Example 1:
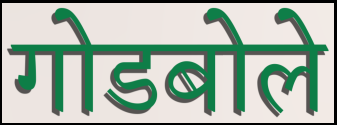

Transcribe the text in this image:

गोडबोले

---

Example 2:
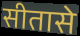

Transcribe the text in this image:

सीतासे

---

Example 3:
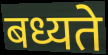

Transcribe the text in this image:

बध्यते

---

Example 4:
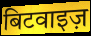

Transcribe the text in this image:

बिटवाइज़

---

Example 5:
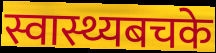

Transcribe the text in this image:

स्वास्थ्यबचके